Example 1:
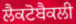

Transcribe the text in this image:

ਲੈਕਟੋਬੈਕਲੀ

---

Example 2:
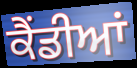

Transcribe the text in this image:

ਕੈਂਡੀਆਂ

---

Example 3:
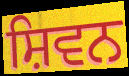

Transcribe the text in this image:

ਸ਼ਿਵਨ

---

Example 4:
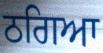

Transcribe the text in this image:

ਠਗਿਆ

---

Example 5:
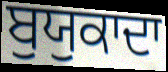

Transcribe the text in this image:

ਬੁਯੁਕਾਦਾ